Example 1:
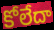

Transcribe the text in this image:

కోలేదా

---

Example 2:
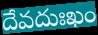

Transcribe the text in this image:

దేవదుఃఖం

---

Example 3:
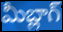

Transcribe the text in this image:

మీబ్లాగ్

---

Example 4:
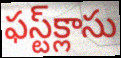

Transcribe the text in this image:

ఫస్ట్‌క్లాసు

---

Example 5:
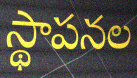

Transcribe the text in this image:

స్థాపనల